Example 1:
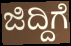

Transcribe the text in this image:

ಜಿದ್ದಿಗೆ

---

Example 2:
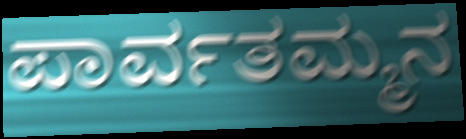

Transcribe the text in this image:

ಪಾರ್ವತಮ್ಮನ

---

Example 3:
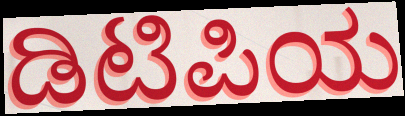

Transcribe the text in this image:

ಡಿಟಿಪಿಯ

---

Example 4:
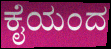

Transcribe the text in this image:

ಕೈಯಂದ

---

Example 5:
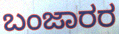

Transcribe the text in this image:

ಬಂಜಾರರ